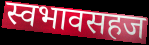
स्वभावसहज